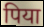
पिया